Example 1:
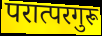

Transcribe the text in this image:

परात्परगुरू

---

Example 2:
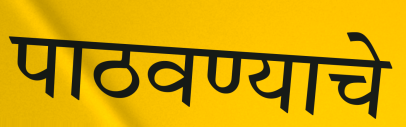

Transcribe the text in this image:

पाठवण्याचे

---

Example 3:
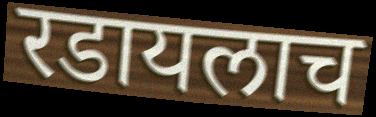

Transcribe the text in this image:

रडायलाच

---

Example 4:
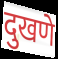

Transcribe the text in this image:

दुखणे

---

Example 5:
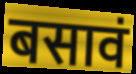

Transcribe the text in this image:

बसावं